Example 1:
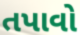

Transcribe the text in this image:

તપાવો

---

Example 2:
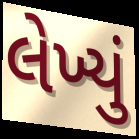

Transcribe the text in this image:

લેખ્યું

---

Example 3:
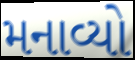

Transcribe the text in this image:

મનાવ્યો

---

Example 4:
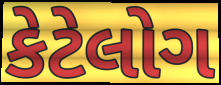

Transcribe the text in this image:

કેટેલોગ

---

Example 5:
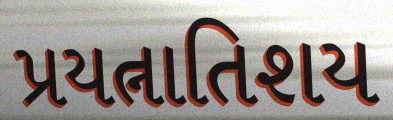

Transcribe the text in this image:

પ્રયત્નાતિશય